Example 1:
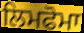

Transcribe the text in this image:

ਲਿਮਫੋਮਾ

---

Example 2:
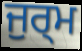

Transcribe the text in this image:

ਜੁਰ੍ਮ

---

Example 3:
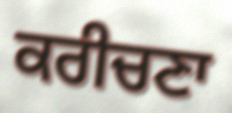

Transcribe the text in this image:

ਕਰੀਚਣਾ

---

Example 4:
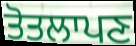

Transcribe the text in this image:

ਤੋਤਲਾਪਣ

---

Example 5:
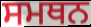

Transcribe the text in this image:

ਸਮਥਨ